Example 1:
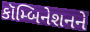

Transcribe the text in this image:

કૉમ્બિનેશનને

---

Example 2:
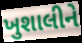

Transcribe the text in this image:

ખુશાલીને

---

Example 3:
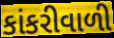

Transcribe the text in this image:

કાંકરીવાળી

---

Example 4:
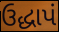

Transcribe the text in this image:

ઉદ્ધાપં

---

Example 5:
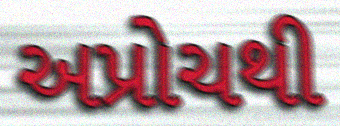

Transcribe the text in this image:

અપ્રોચથી